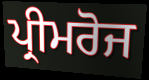
ਪ੍ਰੀਮਰੋਜ